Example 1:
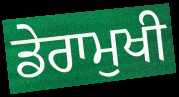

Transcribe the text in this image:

ਡੇਰਾਮੁਖੀ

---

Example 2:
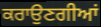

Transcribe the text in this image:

ਕਰਾਉਣਗੀਆਂ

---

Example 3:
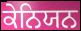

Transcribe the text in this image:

ਕੇਨਿਯਨ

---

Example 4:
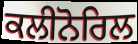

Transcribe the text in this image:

ਕਲੀਨੋਰਿਲ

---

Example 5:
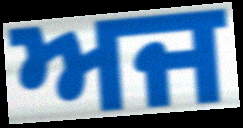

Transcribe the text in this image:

ਅਜ